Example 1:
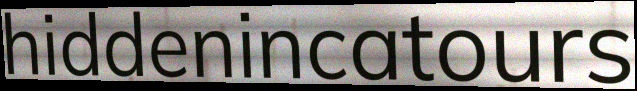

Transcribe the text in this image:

hiddenincatours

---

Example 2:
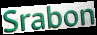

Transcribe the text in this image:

Srabon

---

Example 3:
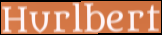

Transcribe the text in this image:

Hurlbert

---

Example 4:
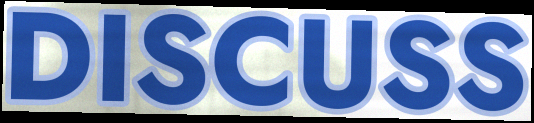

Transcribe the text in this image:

DISCUSS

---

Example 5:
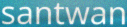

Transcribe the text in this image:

santwan